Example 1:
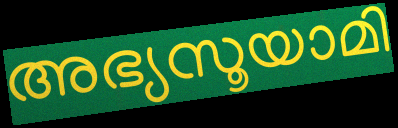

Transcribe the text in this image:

അഭ്യസൂയാമി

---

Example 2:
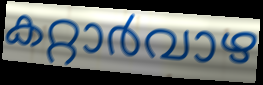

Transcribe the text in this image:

കറ്റാർവാഴ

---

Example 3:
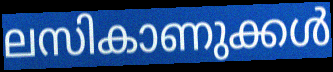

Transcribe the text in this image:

ലസികാണുക്കൾ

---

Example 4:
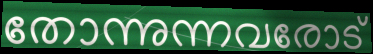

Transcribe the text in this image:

തോന്നുന്നവരോട്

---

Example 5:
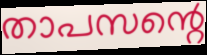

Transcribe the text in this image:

താപസന്റെ